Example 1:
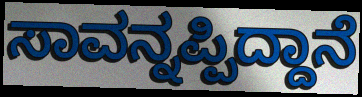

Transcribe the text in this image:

ಸಾವನ್ನಪ್ಪಿದ್ದಾನೆ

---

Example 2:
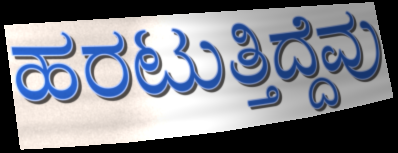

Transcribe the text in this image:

ಹರಟುತ್ತಿದ್ದೆವು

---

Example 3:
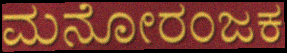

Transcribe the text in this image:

ಮನೋರಂಜಕ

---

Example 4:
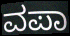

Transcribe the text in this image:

ವಪಾ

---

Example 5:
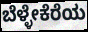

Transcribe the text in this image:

ಬೆಳ್ಳೇಕೆರೆಯ